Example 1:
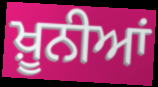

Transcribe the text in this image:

ਖ਼ੂਨੀਆਂ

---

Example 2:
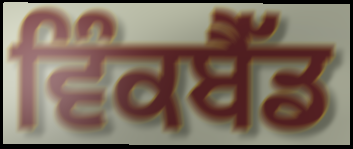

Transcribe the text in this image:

ਵਿੰਕਬੈੱਡ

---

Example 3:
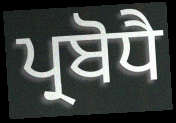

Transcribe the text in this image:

ਪ੍ਰਬੋਧੈ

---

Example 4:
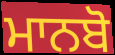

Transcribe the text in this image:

ਮਾਨਬੋ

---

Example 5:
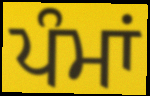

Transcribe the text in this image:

ਪੰਮਾਂ